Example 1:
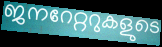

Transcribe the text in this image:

ജനറേറ്ററുകളുടെ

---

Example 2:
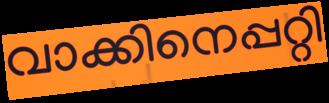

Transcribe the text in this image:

വാക്കിനെപ്പറ്റി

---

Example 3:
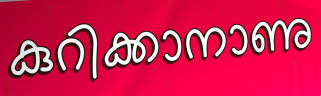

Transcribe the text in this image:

കുറിക്കാനാണു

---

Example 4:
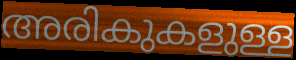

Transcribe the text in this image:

അരികുകളുള്ള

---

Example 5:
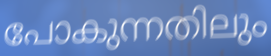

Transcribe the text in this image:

പോകുന്നതിലും